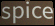
spice